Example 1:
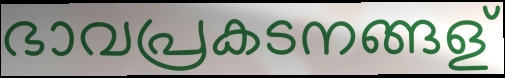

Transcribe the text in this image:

ഭാവപ്രകടനങ്ങള്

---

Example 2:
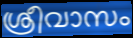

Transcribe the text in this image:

ശ്രീവാസം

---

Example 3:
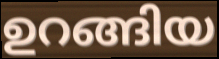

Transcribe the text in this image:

ഉറങ്ങിയ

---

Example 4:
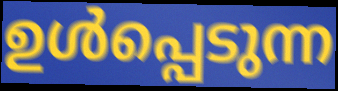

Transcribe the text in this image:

ഉൾപ്പെടുന്ന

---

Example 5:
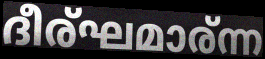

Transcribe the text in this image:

ദീര്ഘമാര്ന്ന